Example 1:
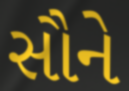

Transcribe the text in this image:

સૌને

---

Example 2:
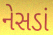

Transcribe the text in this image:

નેસડાં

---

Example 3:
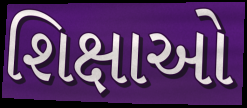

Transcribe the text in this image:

શિક્ષાઓ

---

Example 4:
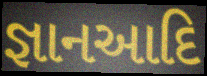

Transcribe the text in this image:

જ્ઞાનઆદિ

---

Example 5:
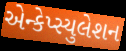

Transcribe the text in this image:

એન્કેપ્સ્યુલેશન